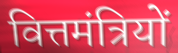
वित्तमंत्रियों